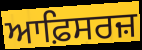
ਆਫ਼ਿਸਰਜ਼